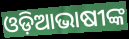
ଓଡ଼ିଆଭାଷୀଙ୍କ